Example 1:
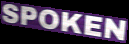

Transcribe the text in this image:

SPOKEN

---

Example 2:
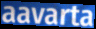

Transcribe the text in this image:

aavarta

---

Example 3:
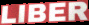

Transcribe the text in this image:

LIBER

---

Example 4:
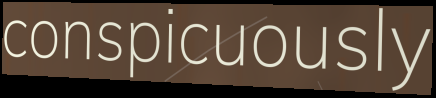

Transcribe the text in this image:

conspicuously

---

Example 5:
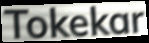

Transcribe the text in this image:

Tokekar